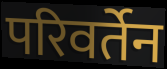
परिवर्तेन